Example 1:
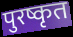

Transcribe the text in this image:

पुरष्कृत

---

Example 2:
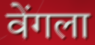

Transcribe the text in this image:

वेंगला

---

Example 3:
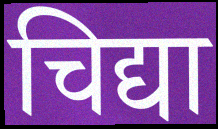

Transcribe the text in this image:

चिद्या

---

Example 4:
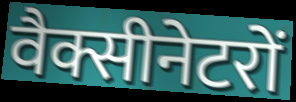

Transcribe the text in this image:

वैक्सीनेटरों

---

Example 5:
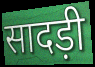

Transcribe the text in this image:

सादड़ी